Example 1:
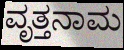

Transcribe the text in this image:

ವೃತ್ತನಾಮ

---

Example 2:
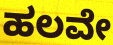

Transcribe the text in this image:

ಹಲವೇ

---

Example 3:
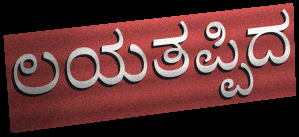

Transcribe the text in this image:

ಲಯತಪ್ಪಿದ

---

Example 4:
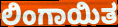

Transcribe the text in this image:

ಲಿಂಗಾಯಿತ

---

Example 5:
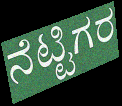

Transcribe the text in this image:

ನೆಟ್ಟಿಗರ